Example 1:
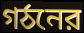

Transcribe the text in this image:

গঠনের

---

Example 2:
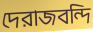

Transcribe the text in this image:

দেরাজবন্দি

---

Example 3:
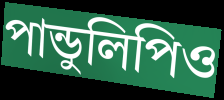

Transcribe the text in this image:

পান্ডুলিপিও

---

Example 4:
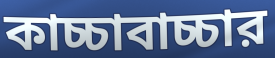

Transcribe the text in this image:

কাচ্চাবাচ্চার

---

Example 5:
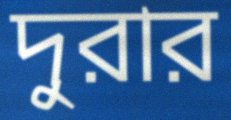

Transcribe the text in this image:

দুরার